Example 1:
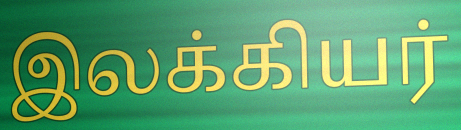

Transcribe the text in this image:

இலக்கியர்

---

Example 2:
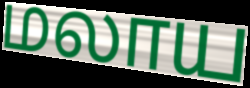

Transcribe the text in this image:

மலாய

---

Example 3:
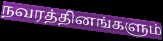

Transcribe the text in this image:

நவரத்தினங்களும்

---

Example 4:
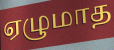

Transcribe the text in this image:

ஏழுமாத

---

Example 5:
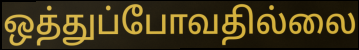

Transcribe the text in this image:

ஒத்துப்போவதில்லை